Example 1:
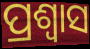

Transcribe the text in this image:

ପ୍ରଶ୍ୱାସ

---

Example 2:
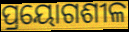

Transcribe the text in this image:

ପ୍ରୟୋଗଶୀଳ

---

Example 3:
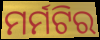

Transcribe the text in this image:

ମର୍ମଟିର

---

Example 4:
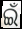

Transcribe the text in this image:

ଇଁ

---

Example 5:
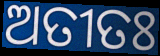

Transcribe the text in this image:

ଅତୀତଃ